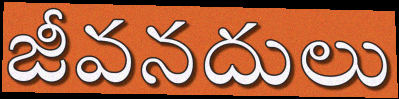
జీవనదులు